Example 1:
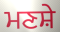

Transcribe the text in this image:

ਮਣਸ਼ੇ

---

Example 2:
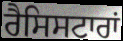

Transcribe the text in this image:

ਰੈਸਿਸਟਾਰਾਂ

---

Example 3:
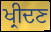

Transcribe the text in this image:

ਖ੍ਰੀਦਣ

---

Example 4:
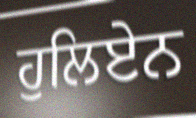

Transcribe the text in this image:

ਹੁਲਿਏਨ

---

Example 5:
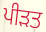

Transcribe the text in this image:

ਪੀਡ਼ਤ